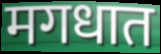
मगधात